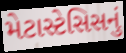
મેટાસ્ટેસિસનું